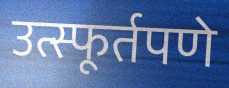
उत्स्फूर्तपणे